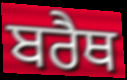
ਬਰੈਥ